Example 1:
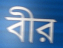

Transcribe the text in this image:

বীর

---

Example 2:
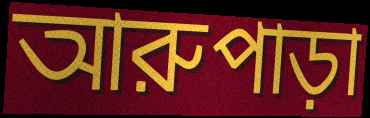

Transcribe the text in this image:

আরুপাড়া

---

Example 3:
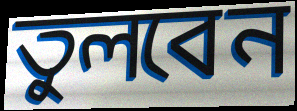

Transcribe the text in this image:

তুলবেন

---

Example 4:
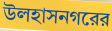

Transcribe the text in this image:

উলহাসনগরের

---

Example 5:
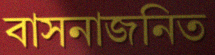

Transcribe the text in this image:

বাসনাজনিত